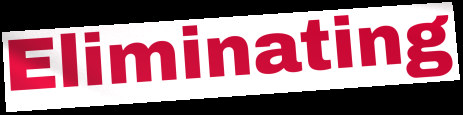
Eliminating